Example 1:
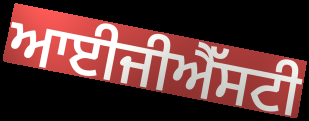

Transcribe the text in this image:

ਆਈਜੀਐੱਸਟੀ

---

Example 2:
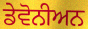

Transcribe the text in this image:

ਡੇਵੋਨੀਅਨ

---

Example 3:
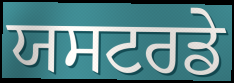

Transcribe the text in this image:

ਯਸਟਰਡੇ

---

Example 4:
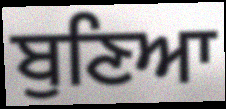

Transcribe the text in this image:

ਬੁਣਿਆ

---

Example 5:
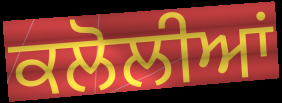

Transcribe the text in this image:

ਕਲੋਲੀਆਂ